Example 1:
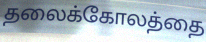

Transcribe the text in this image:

தலைக்கோலத்தை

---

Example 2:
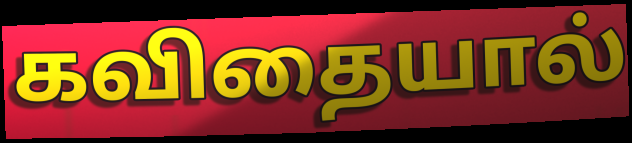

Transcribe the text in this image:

கவிதையால்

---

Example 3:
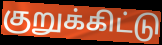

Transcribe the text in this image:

குறுக்கிட்டு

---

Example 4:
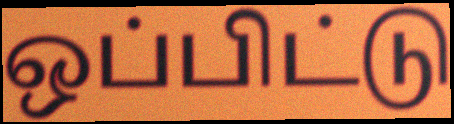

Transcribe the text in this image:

ஒப்பிட்டு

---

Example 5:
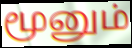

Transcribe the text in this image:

மூனும்